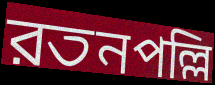
রতনপল্লি